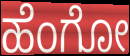
ಹೆಂಗೋ